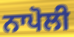
ਨਾਪੋਲੀ